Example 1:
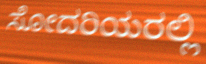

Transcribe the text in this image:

ಸೋದರಿಯರಲ್ಲಿ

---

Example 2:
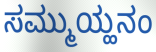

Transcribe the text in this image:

ಸಮ್ಮುಯ್ಹನಂ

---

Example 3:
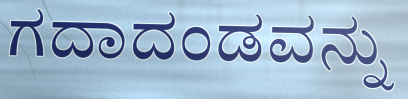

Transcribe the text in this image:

ಗದಾದಂಡವನ್ನು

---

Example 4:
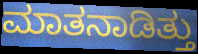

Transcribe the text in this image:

ಮಾತನಾಡಿತ್ತು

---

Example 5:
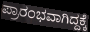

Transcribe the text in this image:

ಪ್ರಾರಂಭವಾಗಿದ್ದಕ್ಕೆ